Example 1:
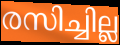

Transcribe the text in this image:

രസിച്ചില്ല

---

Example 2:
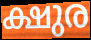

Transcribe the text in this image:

ക്ഷുര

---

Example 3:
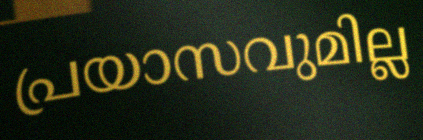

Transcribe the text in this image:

പ്രയാസവുമില്ല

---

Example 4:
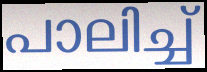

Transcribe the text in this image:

പാലിച്ച്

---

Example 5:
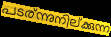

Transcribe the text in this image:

പടര്ന്നുനില്ക്കുന്ന